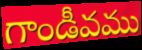
గాండీవము